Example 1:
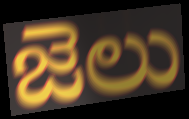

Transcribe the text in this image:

జెలు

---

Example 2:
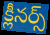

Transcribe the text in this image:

క్లీనర్స్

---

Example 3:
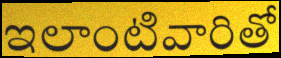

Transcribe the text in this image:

ఇలాంటివారితో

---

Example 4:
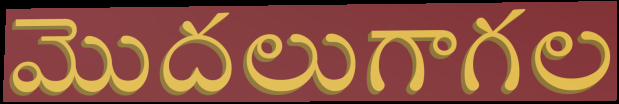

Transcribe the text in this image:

మొదలుగాగల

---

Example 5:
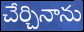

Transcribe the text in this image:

చేర్చినాను